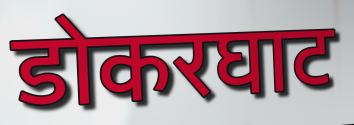
डोकरघाट